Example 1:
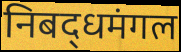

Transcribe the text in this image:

निबद्धमंगल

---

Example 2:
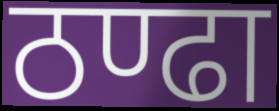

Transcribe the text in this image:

ठण्ढा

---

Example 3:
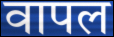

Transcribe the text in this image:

वापल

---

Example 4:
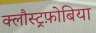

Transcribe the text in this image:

क्लौस्ट्रफ़ोबिया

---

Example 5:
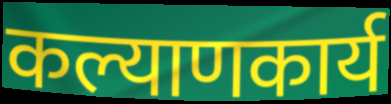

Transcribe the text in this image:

कल्याणकार्य